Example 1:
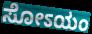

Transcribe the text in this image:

ಸೋಽಯಂ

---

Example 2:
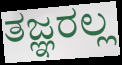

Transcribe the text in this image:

ತಜ್ಞರಲ್ಲ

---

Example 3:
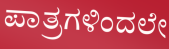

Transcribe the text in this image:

ಪಾತ್ರಗಳಿಂದಲೇ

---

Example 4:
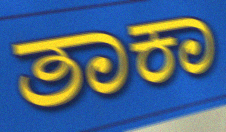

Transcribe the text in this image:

ತಾಕಾ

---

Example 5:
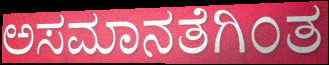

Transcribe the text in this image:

ಅಸಮಾನತೆಗಿಂತ